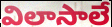
విలాసాలే